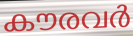
കൗരവർ